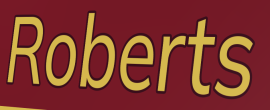
Roberts